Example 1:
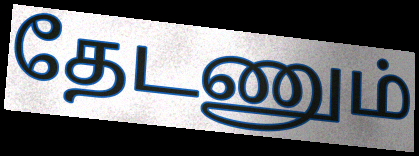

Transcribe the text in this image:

தேடணும்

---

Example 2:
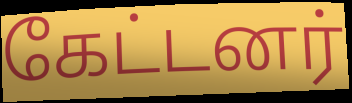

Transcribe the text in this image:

கேட்டனர்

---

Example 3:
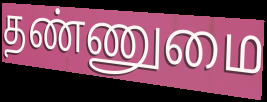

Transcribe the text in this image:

தண்ணுமை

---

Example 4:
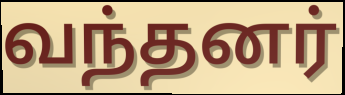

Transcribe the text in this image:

வந்தனர்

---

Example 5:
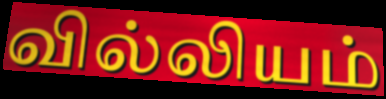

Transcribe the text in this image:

வில்லியம்